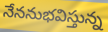
నేననుభవిస్తున్న